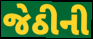
જેઠીની